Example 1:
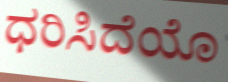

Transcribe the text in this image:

ಧರಿಸಿದೆಯೊ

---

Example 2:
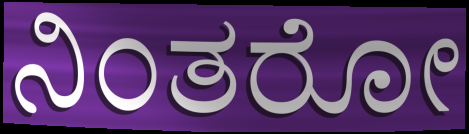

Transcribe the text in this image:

ನಿಂತರೋ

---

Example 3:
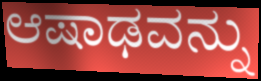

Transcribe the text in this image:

ಆಷಾಢವನ್ನು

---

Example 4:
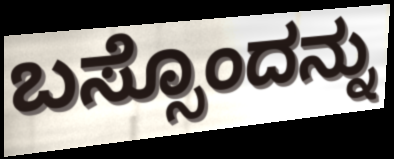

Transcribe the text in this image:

ಬಸ್ಸೊಂದನ್ನು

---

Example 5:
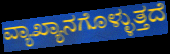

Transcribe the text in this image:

ವ್ಯಾಖ್ಯಾನಗೊಳ್ಳುತ್ತದೆ